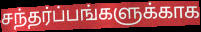
சந்தர்ப்பங்களுக்காக